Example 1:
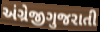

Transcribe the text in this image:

અંગ્રેજીગુજરાતી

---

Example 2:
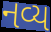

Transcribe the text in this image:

નવ્ય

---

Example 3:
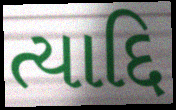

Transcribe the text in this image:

ત્યાદ્દિ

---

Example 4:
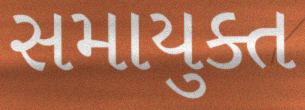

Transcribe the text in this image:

સમાયુક્ત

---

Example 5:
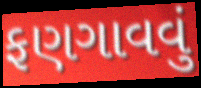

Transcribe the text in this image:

ફણગાવવું